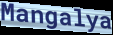
Mangalya